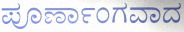
ಪೂರ್ಣಾಂಗವಾದ